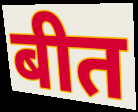
बीत